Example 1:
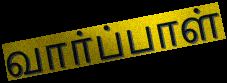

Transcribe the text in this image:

வார்ப்பாள்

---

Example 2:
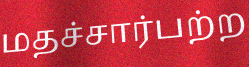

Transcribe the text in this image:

மதச்சார்பற்ற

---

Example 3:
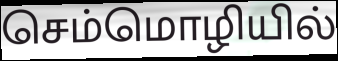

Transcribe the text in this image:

செம்மொழியில்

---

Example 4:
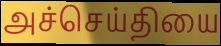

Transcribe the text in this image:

அச்செய்தியை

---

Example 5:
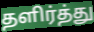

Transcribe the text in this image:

தளிர்த்து